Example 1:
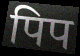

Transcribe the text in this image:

पिप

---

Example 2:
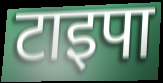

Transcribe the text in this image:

टाइपा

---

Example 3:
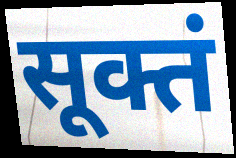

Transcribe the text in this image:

सूक्तं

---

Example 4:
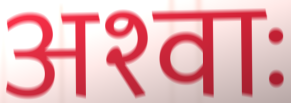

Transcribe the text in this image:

अश्वाः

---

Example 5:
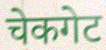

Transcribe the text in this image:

चेकगेट